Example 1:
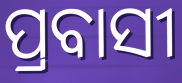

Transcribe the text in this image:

ପ୍ରବାସୀ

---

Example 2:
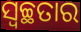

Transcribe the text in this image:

ସ୍ଵଚ୍ଛତାର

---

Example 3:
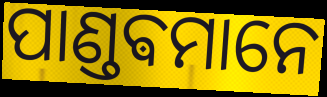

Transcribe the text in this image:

ପାଣ୍ଡଵମାନେ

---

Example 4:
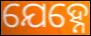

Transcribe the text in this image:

ଯେହ୍ନେ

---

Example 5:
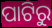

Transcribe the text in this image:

ପାଟିରୁ